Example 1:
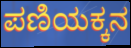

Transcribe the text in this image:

ಪಣಿಯಕ್ಕನ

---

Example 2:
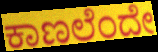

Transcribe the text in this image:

ಕಾಣಲೆಂದೇ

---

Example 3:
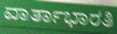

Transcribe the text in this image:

ವಾರ್ತಾಭಾರತಿ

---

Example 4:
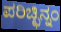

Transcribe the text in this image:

ಪರಿಚ್ಛಿನ್ನಂ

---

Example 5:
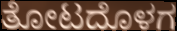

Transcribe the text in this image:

ತೋಟದೊಳಗ